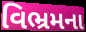
વિભ્રમના